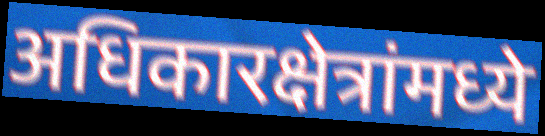
अधिकारक्षेत्रांमध्ये